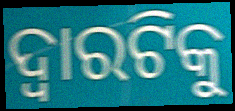
ଦ୍ଵାରଟିକୁ